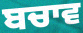
ਬਚਾਵ